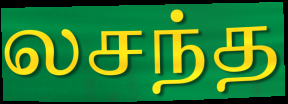
லசந்த